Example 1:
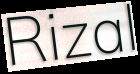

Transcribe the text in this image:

Rizal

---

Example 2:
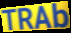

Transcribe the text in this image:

TRAb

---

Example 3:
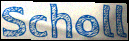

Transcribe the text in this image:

Scholl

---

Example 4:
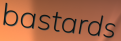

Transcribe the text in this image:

bastards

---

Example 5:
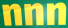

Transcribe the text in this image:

nnn